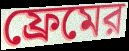
ফ্রেমের